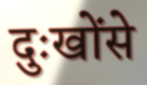
दुःखोंसे